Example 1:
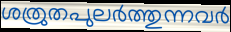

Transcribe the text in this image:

ശത്രുതപുലർത്തുന്നവർ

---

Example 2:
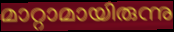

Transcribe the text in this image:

മാറ്റാമായിരുന്നു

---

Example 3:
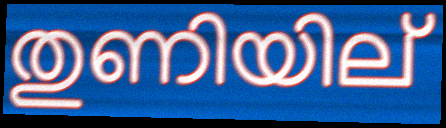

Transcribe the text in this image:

തുണിയില്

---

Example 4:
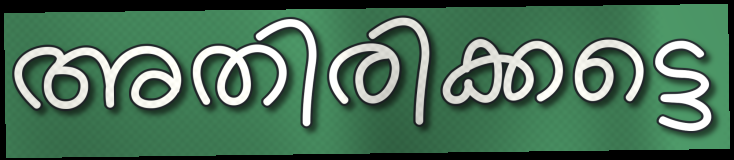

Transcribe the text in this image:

അതിരിക്കട്ടെ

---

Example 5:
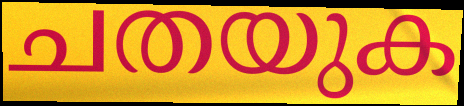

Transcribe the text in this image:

ചതയുക